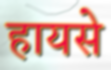
हायसे